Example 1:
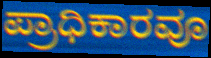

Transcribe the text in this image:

ಪ್ರಾಧಿಕಾರವೂ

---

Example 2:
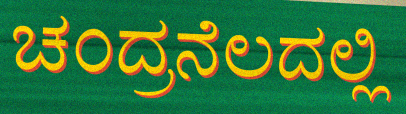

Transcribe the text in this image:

ಚಂದ್ರನೆಲದಲ್ಲಿ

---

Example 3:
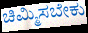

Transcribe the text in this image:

ಚಿಮ್ಮಿಸಬೇಕು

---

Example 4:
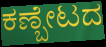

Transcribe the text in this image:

ಕಣ್ಬೇಟದ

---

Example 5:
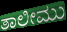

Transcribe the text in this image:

ತಾಲೀಮು